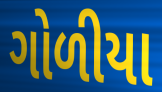
ગોળીયા